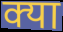
क्या